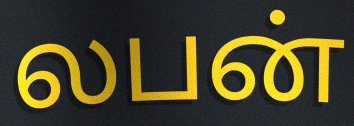
லபன்